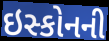
ઇસ્કોનની